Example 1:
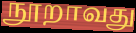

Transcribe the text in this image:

நூறாவது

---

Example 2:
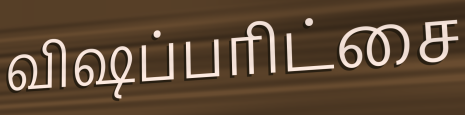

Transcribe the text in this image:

விஷப்பரிட்சை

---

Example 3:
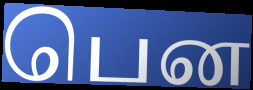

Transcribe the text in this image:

பென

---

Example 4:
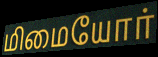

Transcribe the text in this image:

மிமையோர்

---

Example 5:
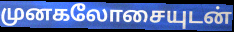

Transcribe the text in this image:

முனகலோசையுடன்